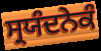
ਸ੍ਰਯੰਦਨੇਕੰ